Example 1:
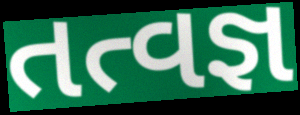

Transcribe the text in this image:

તત્વજ્ઞ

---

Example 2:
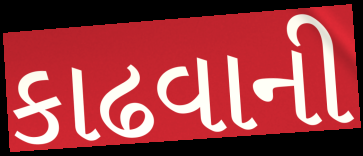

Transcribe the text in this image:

કાઢવાની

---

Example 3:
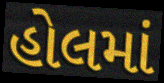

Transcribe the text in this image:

હોલમાં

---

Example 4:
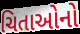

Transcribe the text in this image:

ચિતાઓનો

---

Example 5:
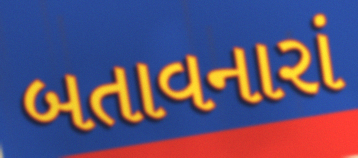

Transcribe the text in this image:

બતાવનારાં